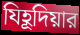
যিহূদিয়ার